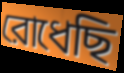
রোধেছি